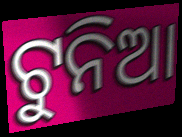
ଟୁନିଆ